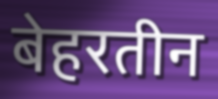
बेहरतीन